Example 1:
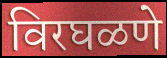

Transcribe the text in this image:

विरघळणे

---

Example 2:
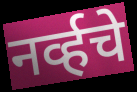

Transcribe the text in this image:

नर्व्हचे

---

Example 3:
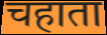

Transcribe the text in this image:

चहाता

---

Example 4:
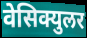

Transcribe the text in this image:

वेसिक्युलर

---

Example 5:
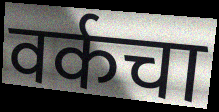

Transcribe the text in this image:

वर्कचा